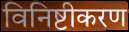
विनिष्टीकरण